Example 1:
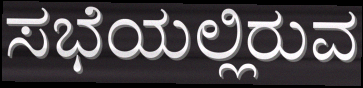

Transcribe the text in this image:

ಸಭೆಯಲ್ಲಿರುವ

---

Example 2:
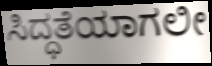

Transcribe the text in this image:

ಸಿದ್ಧತೆಯಾಗಲೀ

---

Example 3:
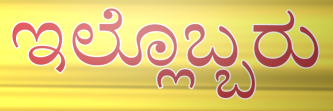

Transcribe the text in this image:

ಇಲ್ಲೊಬ್ಬರು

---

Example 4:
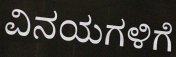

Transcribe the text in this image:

ವಿನಯಗಳಿಗೆ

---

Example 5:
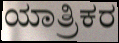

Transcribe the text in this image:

ಯಾತ್ರಿಕರ